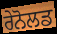
ਰੇਨੋਲਡ